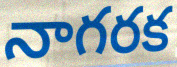
నాగరక